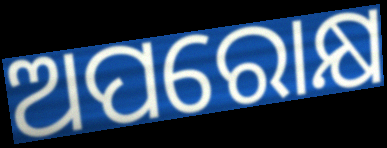
ଅପରୋକ୍ଷ